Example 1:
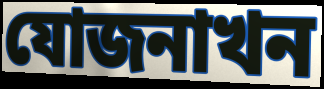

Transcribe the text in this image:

যোজনাখন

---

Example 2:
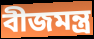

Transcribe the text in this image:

বীজমন্ত্ৰ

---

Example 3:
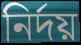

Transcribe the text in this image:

নিৰ্দয়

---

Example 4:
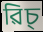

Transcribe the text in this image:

ৱিচ্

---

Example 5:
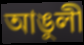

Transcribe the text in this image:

আঙুলী